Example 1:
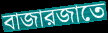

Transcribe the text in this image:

বাজারজাতে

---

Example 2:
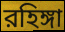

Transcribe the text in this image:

রহিঙ্গা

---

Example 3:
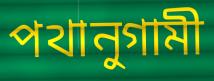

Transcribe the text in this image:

পথানুগামী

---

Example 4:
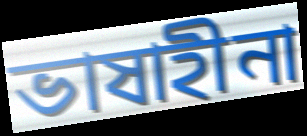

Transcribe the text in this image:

ভাষাহীনা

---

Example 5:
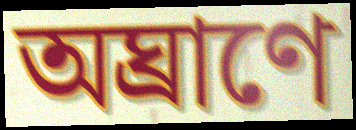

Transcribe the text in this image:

অঘ্রাণে